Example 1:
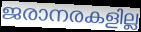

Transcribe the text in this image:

ജരാനരകളില്ല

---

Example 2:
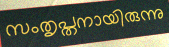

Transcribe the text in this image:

സംതൃപ്തനായിരുന്നു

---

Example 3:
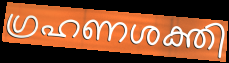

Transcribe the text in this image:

ഗ്രഹണശക്തി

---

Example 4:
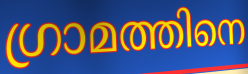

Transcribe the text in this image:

ഗ്രാമത്തിനെ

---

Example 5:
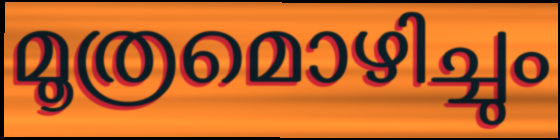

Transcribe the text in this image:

മൂത്രമൊഴിച്ചും